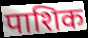
पाशिक